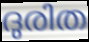
ദുരിത